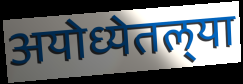
अयोध्येतल्या